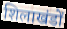
शिलाखंडों